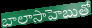
బాలాసాహెబుతో